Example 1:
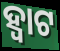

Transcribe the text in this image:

ହ୍ଵାଟ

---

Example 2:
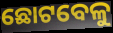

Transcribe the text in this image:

ଛୋଟବେଳୁ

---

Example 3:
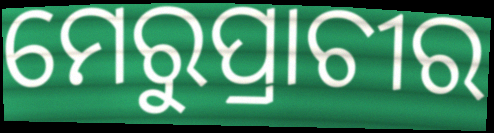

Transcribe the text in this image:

ମେରୁପ୍ରାଚୀର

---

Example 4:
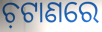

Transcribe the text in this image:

ଚ଼ଟାଣରେ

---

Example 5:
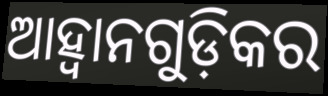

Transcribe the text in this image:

ଆହ୍ଵାନଗୁଡ଼ିକର